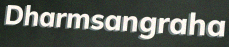
Dharmsangraha